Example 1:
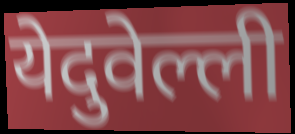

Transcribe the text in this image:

येदुवेल्ली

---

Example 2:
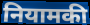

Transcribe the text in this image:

नियामकी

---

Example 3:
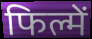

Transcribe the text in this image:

फिल्‍में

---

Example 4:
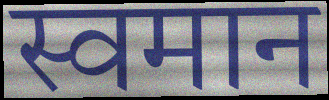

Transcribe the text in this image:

स्वमान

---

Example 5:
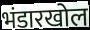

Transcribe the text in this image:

भंडारखोल